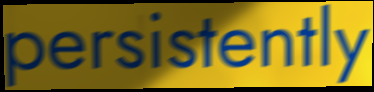
persistently